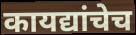
कायद्यांचेच